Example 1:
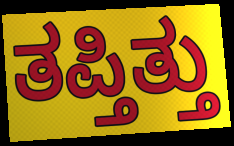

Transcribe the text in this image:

ತಪ್ತಿತ್ತು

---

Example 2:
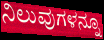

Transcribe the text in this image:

ನಿಲುವುಗಳನ್ನೂ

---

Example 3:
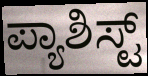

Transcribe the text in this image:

ಪ್ಯಾಶಿಸ್ಟ್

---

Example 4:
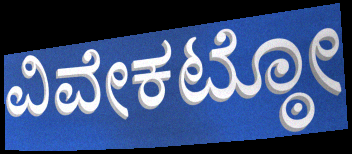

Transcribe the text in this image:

ವಿವೇಕಟ್ಠೋ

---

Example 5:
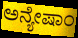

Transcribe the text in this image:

ಅನ್ಯೇಷಾಂ